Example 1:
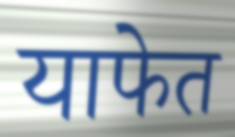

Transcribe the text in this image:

याफेत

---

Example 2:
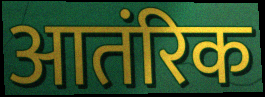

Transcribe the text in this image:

आतंरिक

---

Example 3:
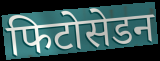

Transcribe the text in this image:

फिटोसेडन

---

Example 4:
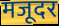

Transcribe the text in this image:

मजूदर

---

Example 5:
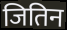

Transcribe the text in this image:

जितिन